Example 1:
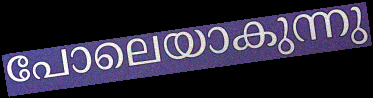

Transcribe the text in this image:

പോലെയാകുന്നു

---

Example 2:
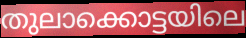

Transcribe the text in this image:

തുലാക്കൊട്ടയിലെ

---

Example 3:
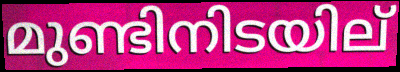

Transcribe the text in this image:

മുണ്ടിനിടയില്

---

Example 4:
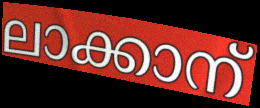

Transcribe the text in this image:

ലാക്കാന്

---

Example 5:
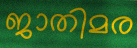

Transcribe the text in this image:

ജാതിമര